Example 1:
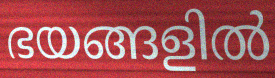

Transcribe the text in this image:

ഭയങ്ങളിൽ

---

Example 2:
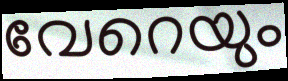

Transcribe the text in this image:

വേറെയും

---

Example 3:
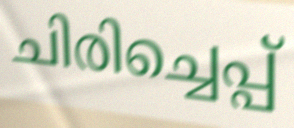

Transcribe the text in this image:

ചിരിച്ചെപ്പ്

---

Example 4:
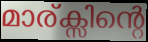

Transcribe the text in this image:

മാര്ക്സിന്റെ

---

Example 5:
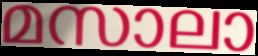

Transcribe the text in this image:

മസാലാ